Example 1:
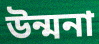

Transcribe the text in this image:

উন্মনা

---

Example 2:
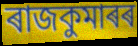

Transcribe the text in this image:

ৰাজকুমাৰৰ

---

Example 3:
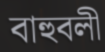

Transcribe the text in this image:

বাহুবলী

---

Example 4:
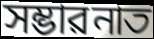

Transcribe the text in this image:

সম্ভাৱনাত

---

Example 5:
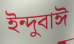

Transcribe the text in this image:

ইন্দুবাঈ